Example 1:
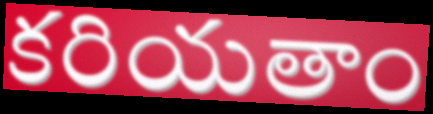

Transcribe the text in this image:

కరియతాం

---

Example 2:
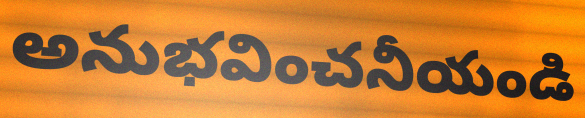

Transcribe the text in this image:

అనుభవించనీయండి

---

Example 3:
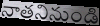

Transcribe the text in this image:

నాతనినుండి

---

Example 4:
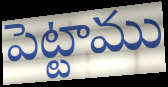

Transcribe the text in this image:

పెట్టాము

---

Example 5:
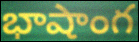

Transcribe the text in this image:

భాషాంగ